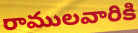
రాములవారికి